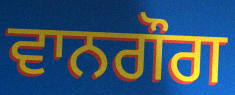
ਵਾਨਗੌਗ